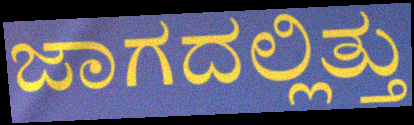
ಜಾಗದಲ್ಲಿತ್ತು